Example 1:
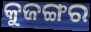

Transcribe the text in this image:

କୁଜଙ୍ଗର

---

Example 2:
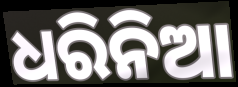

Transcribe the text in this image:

ଧରିନିଆ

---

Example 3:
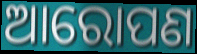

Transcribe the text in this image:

ଆରୋପଣ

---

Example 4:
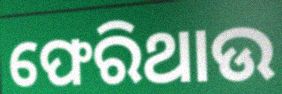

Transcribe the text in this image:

ଫେରିଥାଉ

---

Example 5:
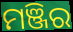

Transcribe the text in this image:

ମଞ୍ଜିର